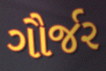
ગૌર્જર